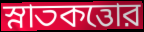
স্নাতকত্তোর